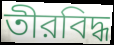
তীরবিদ্ধ